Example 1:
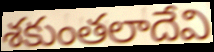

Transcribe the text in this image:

శకుంతలాదేవి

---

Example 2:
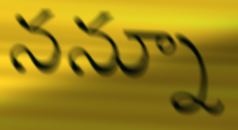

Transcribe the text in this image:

నన్నూ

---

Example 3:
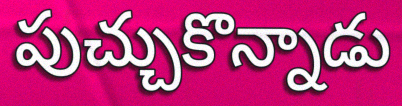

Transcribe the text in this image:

పుచ్చుకొన్నాడు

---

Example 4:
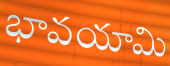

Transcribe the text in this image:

భావయామి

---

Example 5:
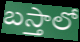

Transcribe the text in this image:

బస్తాలో